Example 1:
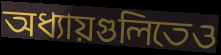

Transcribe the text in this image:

অধ্যায়গুলিতেও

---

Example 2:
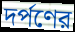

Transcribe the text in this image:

দর্পণের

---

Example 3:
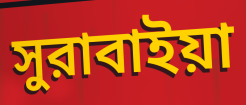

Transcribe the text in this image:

সুরাবাইয়া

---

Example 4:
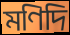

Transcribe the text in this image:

মণিদি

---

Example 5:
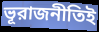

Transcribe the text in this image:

ভূরাজনীতিই